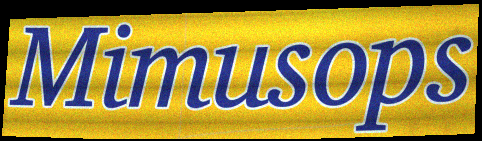
Mimusops